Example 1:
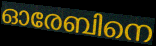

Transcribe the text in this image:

ഓരേബിനെ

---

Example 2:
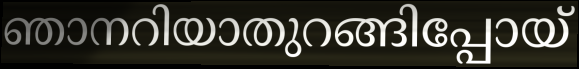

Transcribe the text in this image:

ഞാനറിയാതുറങ്ങിപ്പോയ്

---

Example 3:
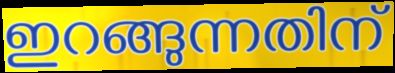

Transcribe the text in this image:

ഇറങ്ങുന്നതിന്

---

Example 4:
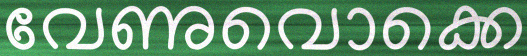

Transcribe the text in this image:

വേണുവൊക്കെ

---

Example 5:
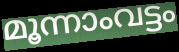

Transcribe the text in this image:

മൂന്നാംവട്ടം